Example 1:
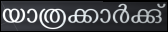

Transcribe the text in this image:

യാത്രക്കാർക്കു്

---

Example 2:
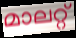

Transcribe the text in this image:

മാലറ്റ്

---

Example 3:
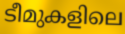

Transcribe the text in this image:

ടീമുകളിലെ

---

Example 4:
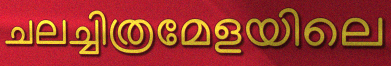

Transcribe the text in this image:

ചലച്ചിത്രമേളയിലെ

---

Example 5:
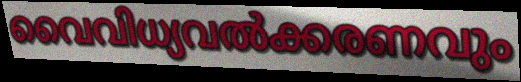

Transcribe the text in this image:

വൈവിധ്യവൽക്കരണവും